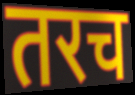
तरच